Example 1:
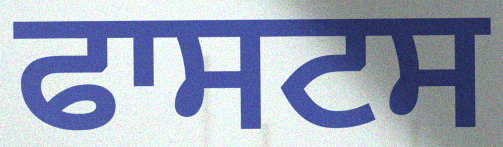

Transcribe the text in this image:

ਫਾਸਟਸ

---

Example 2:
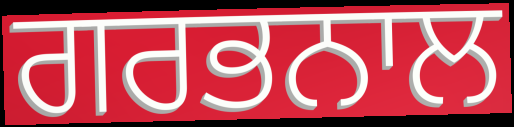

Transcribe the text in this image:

ਗਰਭਨਾਲ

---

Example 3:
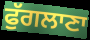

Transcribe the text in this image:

ਫੁੱਗਲਾਣਾ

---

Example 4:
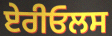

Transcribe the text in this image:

ਏਰੀਓਲਸ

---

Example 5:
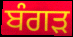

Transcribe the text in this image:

ਬੰਗੜ